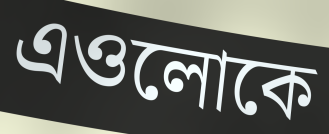
এওলোকে